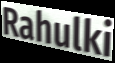
Rahulki